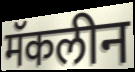
मॅकलीन